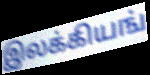
இலக்கியங்